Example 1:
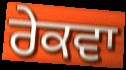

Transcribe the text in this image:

ਰੇਕਵਾ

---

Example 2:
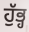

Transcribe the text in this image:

ਹੁੱਭ੍ਹ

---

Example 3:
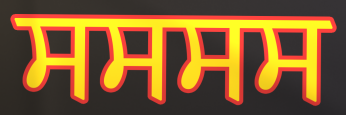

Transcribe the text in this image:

ਸਸਸਸ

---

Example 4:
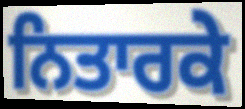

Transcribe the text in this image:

ਨਿਤਾਰਕੇ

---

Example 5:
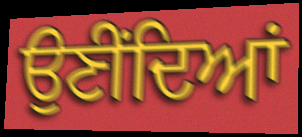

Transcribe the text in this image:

ਉਣੀਂਦਿਆਂ